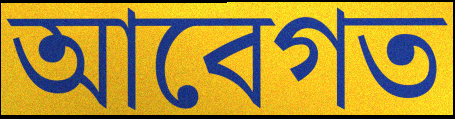
আবেগত